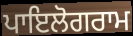
ਪਾਇਲੋਗਰਾਮ